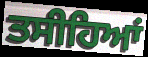
ਤਸੀਹਿਆਂ